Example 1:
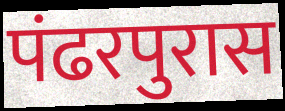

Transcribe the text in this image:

पंढरपुरास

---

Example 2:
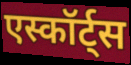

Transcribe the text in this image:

एस्कॉर्ट्स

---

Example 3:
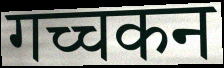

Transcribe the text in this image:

गच्चकन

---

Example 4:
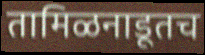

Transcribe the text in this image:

तामिळनाडूतच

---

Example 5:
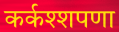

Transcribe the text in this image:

कर्कश्शपणा